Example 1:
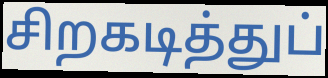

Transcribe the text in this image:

சிறகடித்துப்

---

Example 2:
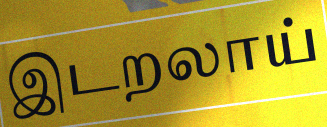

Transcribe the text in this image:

இடறலாய்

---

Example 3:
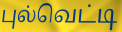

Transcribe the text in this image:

புல்வெட்டி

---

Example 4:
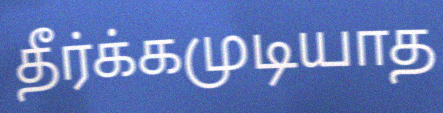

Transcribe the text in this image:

தீர்க்கமுடியாத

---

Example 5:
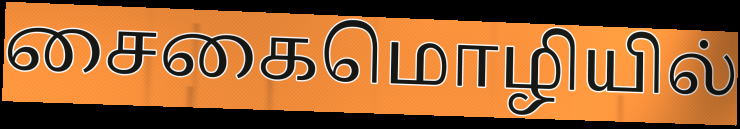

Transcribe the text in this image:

சைகைமொழியில்